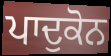
ਪਾਦੁਕੋਨ